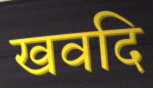
खवदि